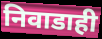
निवाडाही